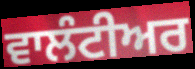
ਵਾਲੰਟੀਅਰ